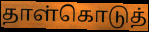
தாள்கொடுத்